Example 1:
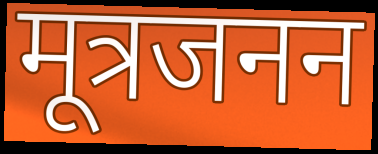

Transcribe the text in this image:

मूत्रजनन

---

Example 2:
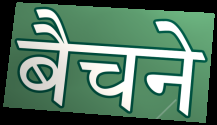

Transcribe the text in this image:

बैचने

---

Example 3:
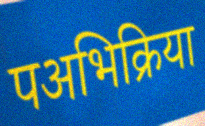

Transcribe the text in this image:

पअभिक्रिया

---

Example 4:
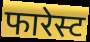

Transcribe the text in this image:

फारेस्ट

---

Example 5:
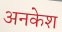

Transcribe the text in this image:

अनकेश